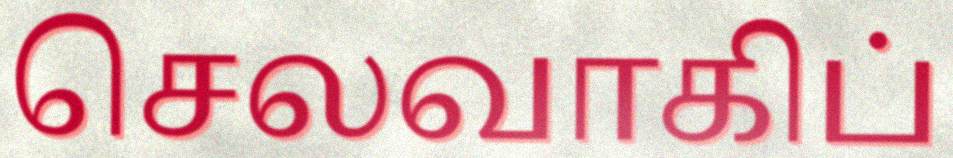
செலவாகிப்